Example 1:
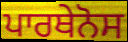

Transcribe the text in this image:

ਪਾਰਥੇਨੋਸ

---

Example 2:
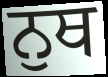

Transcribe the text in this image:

ਨੁਥ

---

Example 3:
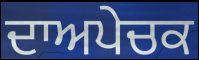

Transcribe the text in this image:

ਦਾਅਪੇਚਕ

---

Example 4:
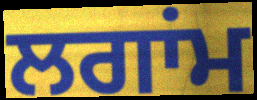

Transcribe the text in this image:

ਲਗਾਂਮ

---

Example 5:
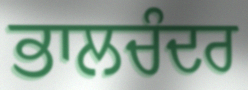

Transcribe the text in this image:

ਭਾਲਚੰਦਰ